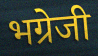
भग्रेजी